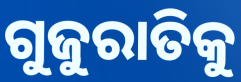
ଗୁଜୁରାତିକୁ